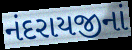
નંદરાયજીનાં